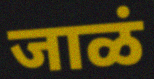
जाळं